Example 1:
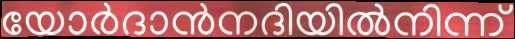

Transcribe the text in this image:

യോർദാൻനദിയിൽനിന്ന്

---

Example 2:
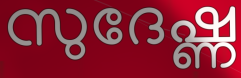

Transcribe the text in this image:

സുദേഷ്ണ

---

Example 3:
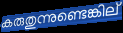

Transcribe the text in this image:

കരുതുന്നുണ്ടെങ്കില്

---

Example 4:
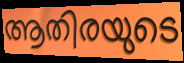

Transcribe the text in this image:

ആതിരയുടെ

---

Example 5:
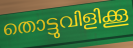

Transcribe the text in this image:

തൊട്ടുവിളിക്കൂ